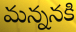
మన్ననకి